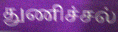
துணிச்சல்